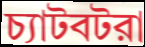
চ্যাটবটরা